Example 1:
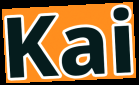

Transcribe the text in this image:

Kai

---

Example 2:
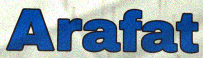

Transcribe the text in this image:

Arafat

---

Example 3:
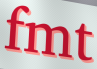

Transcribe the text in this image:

fmt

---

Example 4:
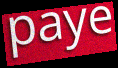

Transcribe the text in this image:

paye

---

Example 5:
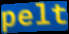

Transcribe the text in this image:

pelt